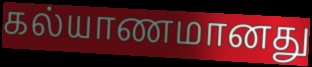
கல்யாணமானது